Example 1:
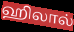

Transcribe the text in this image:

ஹிலால்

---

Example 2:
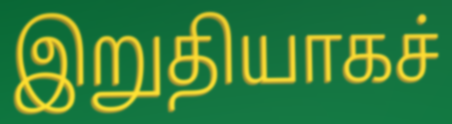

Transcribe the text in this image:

இறுதியாகச்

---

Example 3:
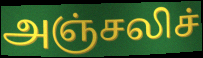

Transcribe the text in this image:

அஞ்சலிச்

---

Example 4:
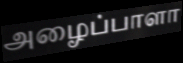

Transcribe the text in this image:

அழைப்பாளா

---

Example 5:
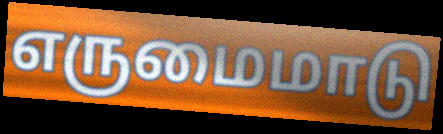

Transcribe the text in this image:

எருமைமாடு